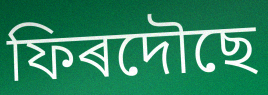
ফিৰদৌছে